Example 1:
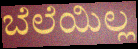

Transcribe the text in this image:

ಬೆಲೆಯಿಲ್ಲ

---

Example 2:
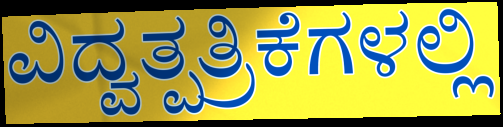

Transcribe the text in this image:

ವಿದ್ವತ್ಪತ್ರಿಕೆಗಳಲ್ಲಿ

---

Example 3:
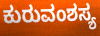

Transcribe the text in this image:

ಕುರುವಂಶಸ್ಯ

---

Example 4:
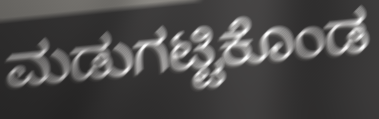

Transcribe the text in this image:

ಮಡುಗಟ್ಟಿಕೊಂಡ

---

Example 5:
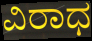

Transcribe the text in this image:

ವಿರಾಧ